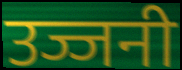
उज्जनी